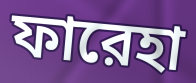
ফারেহা